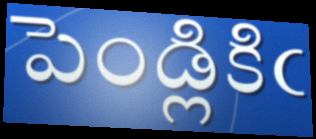
పెండ్లికిఁ